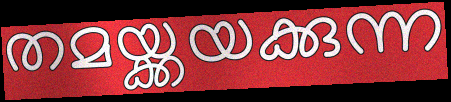
തമയ്ക്കയക്കുന്ന